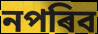
নপৰিব